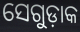
ସେଗୁଡ଼ାକ